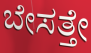
ಬೇಸತ್ತೇ